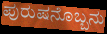
ಪುರುಷನೊಬ್ಬನು